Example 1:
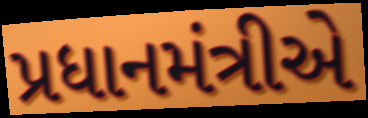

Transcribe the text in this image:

પ્રધાનમંત્રીએ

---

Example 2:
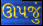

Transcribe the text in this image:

ઊપજું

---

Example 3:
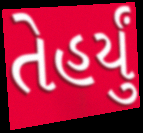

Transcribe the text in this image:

તેહર્યું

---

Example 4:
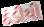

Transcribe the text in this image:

ઠંડીથી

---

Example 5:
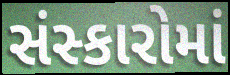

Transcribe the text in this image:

સંસ્કારોમાં